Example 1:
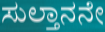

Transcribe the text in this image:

ಸುಲ್ತಾನನೇ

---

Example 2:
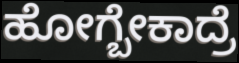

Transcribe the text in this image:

ಹೋಗ್ಬೇಕಾದ್ರೆ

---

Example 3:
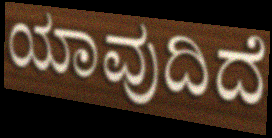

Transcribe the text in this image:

ಯಾವುದಿದೆ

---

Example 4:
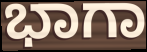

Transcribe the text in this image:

ಭಾಗಾ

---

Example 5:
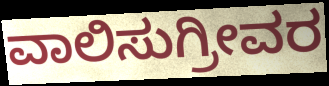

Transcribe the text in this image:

ವಾಲಿಸುಗ್ರೀವರ